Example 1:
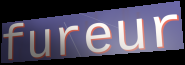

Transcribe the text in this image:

fureur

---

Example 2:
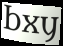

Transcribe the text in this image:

bxy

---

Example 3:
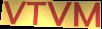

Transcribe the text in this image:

VTVM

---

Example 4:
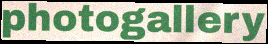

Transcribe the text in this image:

photogallery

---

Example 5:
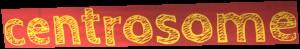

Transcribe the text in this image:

centrosome